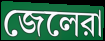
জেলেরা